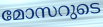
മോസറുടെ